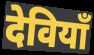
देवियाँ